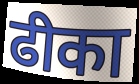
ढीका